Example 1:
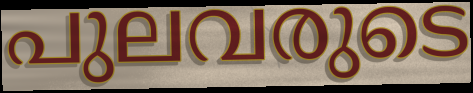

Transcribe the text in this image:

പുലവരുടെ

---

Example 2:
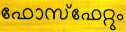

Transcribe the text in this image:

ഫോസ്ഫേറ്റും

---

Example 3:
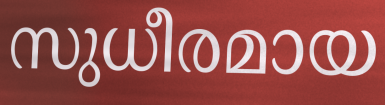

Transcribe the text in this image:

സുധീരമായ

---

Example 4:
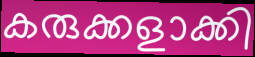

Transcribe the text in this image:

കരുക്കളാക്കി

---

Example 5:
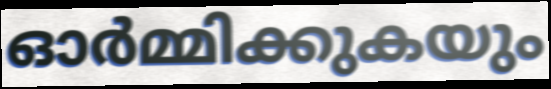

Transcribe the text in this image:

ഓർമ്മിക്കുകയും